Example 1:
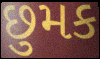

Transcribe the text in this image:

છુમક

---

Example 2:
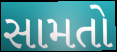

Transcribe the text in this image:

સામતો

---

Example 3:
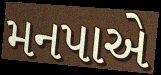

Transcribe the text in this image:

મનપાએ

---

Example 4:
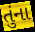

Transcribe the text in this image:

તુંના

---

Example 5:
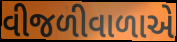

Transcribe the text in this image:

વીજળીવાળાએ